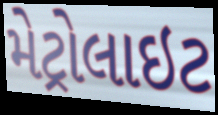
મેટ્રોલાઇટ